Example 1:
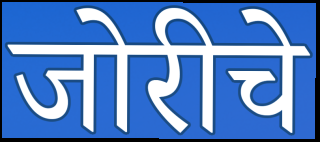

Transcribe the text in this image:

जोरीचे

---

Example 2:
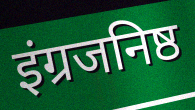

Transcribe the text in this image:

इंग्रजनिष्ठ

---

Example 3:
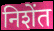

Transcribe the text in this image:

निशेंत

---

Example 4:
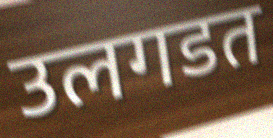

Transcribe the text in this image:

उलगडत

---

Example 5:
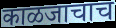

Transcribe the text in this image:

काळजाचाच